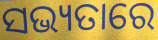
ସଭ୍ୟତାରେ